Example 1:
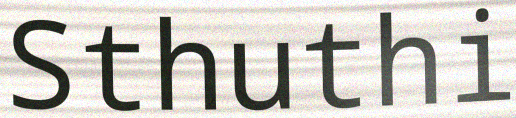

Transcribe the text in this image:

Sthuthi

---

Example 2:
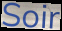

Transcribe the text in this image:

Soir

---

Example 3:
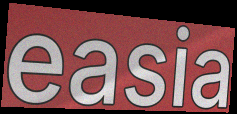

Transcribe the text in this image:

easia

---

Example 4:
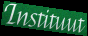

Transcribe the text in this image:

Instituut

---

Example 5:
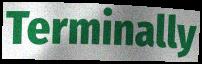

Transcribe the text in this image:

Terminally